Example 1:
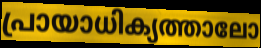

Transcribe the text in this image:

പ്രായാധിക്യത്താലോ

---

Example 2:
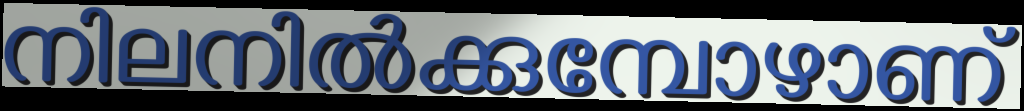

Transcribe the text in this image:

നിലനിൽക്കുമ്പോഴാണ്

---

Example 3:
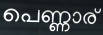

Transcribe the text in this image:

പെണ്ണാര്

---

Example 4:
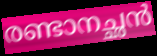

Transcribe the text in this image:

രണ്ടാനച്ഛൻ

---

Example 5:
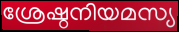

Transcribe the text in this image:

ശ്രേഷ്ഠനിയമസ്യ